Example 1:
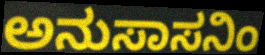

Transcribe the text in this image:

ಅನುಸಾಸನಿಂ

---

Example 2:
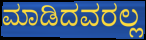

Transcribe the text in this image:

ಮಾಡಿದವರಲ್ಲ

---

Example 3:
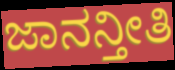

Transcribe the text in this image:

ಜಾನನ್ತೀತಿ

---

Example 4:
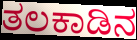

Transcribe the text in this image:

ತಲಕಾಡಿನ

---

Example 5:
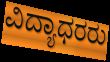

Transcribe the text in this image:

ವಿದ್ಯಾಧರರು